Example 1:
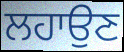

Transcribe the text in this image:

ਲਹਾਉਣ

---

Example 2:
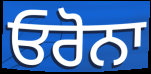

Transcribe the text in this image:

ਓਰੋਨਾ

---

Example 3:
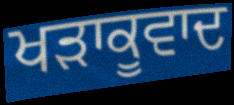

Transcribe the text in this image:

ਖੜਾਕੂਵਾਦ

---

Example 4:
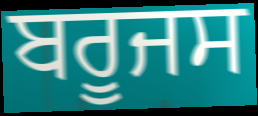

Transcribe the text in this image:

ਬਰੂਜਸ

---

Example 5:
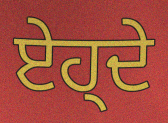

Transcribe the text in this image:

ਏਹ੍ਦੇ